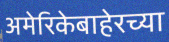
अमेरिकेबाहेरच्या